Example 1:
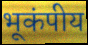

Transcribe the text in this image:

भूकंपीय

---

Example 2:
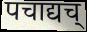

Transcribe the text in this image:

पचाद्यच्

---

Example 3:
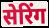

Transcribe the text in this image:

सेरिंग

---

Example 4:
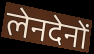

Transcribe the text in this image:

लेनदेनों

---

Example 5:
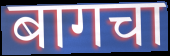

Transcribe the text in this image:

बागचा